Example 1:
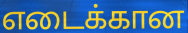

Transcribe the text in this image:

எடைக்கான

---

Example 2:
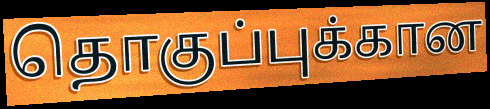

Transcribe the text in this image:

தொகுப்புக்கான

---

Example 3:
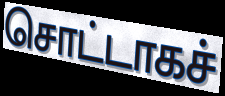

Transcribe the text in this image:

சொட்டாகச்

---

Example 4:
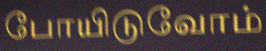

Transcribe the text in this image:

போயிடுவோம்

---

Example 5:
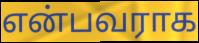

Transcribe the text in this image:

என்பவராக